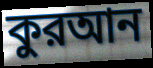
কুরআন